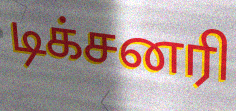
டிக்சனரி